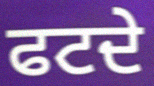
ਫਟਦੇ